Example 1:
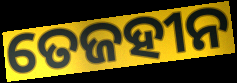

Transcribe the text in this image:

ତେଜହୀନ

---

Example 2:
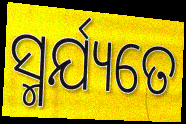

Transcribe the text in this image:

ସ୍ମର୍ଯ୍ୟତେ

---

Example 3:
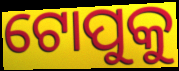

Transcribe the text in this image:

ଟୋପୁକୁ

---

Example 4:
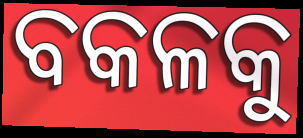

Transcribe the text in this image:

ବକଳକୁ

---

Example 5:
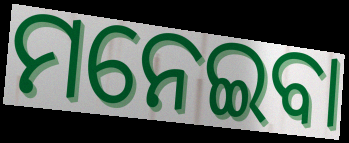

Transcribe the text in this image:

ମନେଇବା